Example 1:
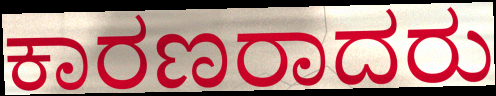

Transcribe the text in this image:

ಕಾರಣರಾದರು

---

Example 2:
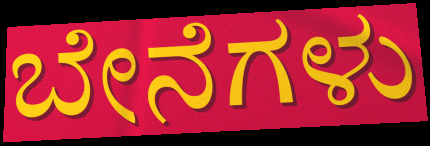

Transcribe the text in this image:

ಬೇನೆಗಳು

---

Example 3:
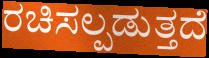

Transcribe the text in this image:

ರಚಿಸಲ್ಪಡುತ್ತದೆ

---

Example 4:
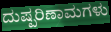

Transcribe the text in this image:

ದುಷ್ಪರಿಣಾಮಗಳು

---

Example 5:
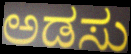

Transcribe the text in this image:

ಅಡಸು